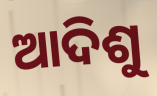
ଆଦିଶୁ